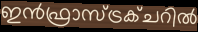
ഇൻഫ്രാസ്ട്രക്ചറിൽ